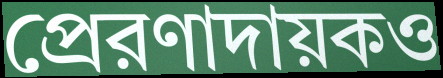
প্রেরণাদায়কও